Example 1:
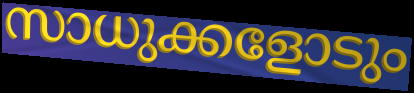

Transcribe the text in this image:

സാധുക്കളോടും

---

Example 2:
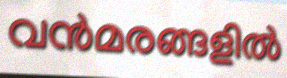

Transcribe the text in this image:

വൻമരങ്ങളിൽ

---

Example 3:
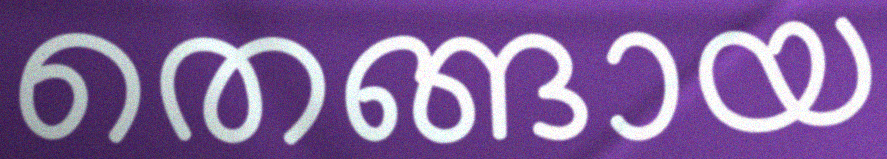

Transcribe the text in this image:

തെങ്ങായ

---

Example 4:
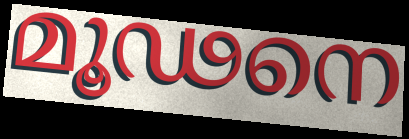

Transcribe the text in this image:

മൂഢനെ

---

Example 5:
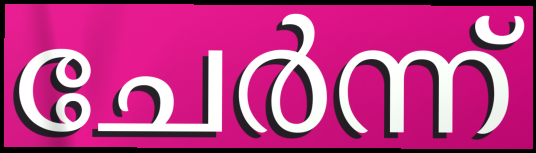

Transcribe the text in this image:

ചേർന്ന്